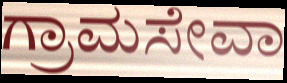
ಗ್ರಾಮಸೇವಾ